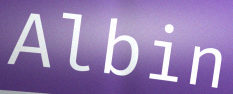
Albin